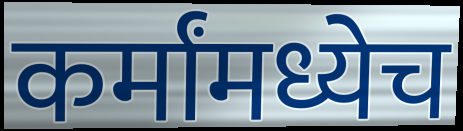
कर्मांमध्येच